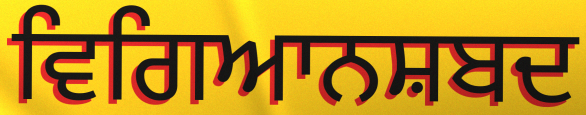
ਵਿਗਿਆਨਸ਼ਬਦ